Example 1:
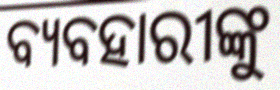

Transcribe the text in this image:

ବ୍ୟବହାରୀଙ୍କୁ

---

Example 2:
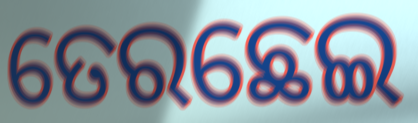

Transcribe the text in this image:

ତେରଛେଇ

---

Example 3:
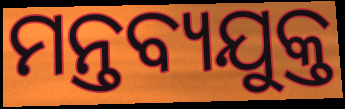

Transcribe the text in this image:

ମନ୍ତବ୍ୟଯୁକ୍ତ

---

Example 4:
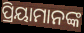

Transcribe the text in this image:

ପ୍ରିୟାମାନଙ୍କ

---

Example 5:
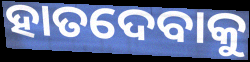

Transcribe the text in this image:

ହାତଦେବାକୁ